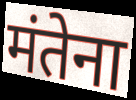
मंतेना